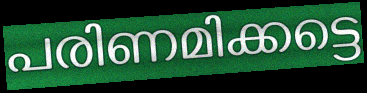
പരിണമിക്കട്ടെ